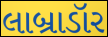
લાબ્રાડૉર